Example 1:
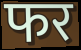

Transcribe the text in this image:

फर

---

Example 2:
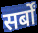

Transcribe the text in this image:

सर्बों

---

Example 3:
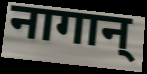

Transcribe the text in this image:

नागान्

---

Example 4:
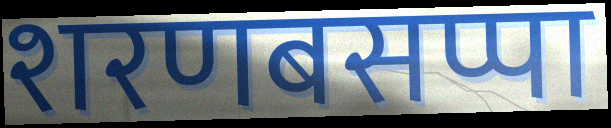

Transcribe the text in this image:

शरणबसप्पा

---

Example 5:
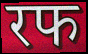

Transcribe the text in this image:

रफ